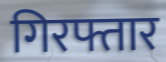
गिरफ्‍तार